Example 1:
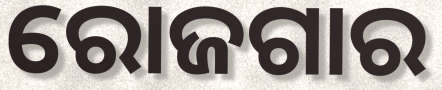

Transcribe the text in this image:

ରୋଜଗାର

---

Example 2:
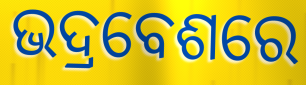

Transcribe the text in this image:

ଭଦ୍ରବେଶରେ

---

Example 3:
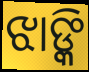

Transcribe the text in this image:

ଝାଙ୍କି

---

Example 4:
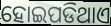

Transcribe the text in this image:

ହୋଇପଡିଥାଏ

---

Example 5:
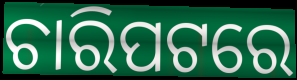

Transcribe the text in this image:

ଚାରିପଟରେ